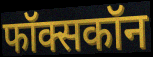
फॉक्सकॉन